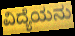
ವಿದ್ಯೆಯನು